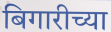
बिगारीच्या